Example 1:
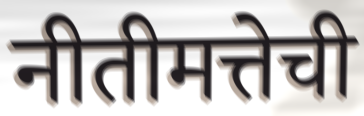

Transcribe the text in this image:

नीतीमत्तेची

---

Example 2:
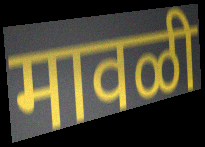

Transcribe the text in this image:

मावळी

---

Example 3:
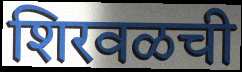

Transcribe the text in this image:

शिरवळची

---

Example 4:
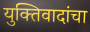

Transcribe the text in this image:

युक्तिवादांचा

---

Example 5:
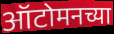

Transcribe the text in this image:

ऑटोमनच्या